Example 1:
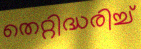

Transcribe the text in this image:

തെറ്റിദ്ധരിച്ച്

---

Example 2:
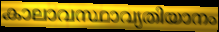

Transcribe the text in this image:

കാലാവസ്ഥാവ്യതിയാനം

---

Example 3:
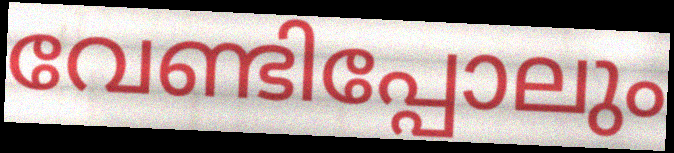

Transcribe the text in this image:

വേണ്ടിപ്പോലും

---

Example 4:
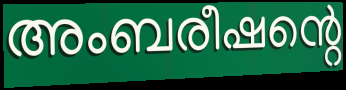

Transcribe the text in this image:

അംബരീഷന്റെ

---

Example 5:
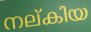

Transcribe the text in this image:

നല്‌കിയ